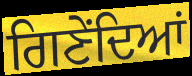
ਗਿਣੇਂਦਿਆਂ